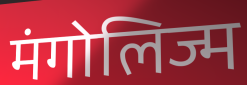
मंगोलिज्म